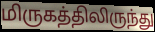
மிருகத்திலிருந்து